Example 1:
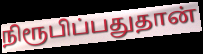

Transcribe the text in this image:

நிரூபிப்பதுதான்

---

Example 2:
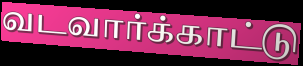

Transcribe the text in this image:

வடவார்க்காட்டு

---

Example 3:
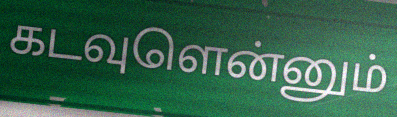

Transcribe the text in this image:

கடவுளென்னும்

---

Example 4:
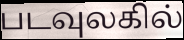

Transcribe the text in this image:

படவுலகில்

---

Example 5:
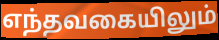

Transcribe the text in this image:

எந்தவகையிலும்